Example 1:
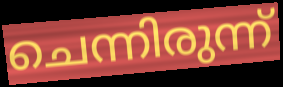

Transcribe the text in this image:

ചെന്നിരുന്ന്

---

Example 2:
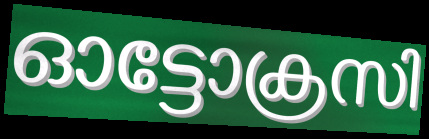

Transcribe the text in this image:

ഓട്ടോക്രസി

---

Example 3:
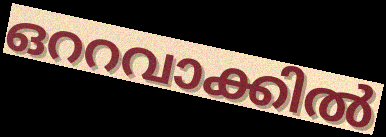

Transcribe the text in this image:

ഒററവാക്കിൽ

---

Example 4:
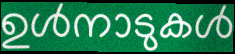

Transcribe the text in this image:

ഉൾനാടുകൾ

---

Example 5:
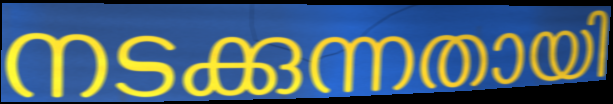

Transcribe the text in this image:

നടക്കുന്നതായി